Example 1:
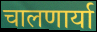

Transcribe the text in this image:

चालणार्या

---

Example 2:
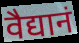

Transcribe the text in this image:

वैद्यानं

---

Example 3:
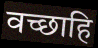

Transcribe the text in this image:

वच्छाहि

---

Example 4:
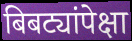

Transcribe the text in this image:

बिबट्यांपेक्षा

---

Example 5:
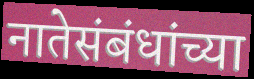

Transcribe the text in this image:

नातेसंबंधांच्या